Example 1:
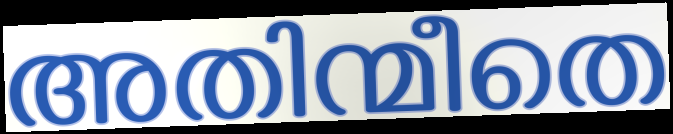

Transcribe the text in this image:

അതിന്മീതെ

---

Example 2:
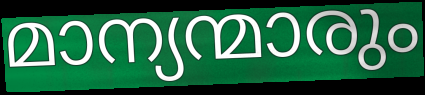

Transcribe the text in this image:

മാന്യന്മാരും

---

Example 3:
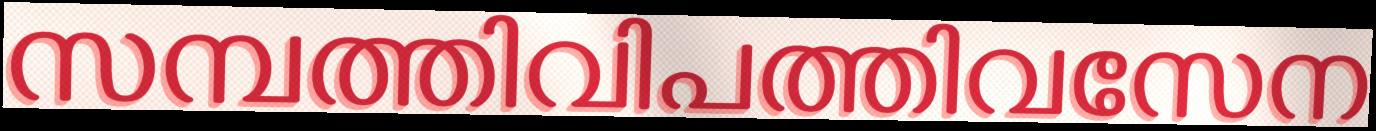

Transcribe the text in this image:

സമ്പത്തിവിപത്തിവസേന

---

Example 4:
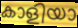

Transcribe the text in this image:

കാളിയാ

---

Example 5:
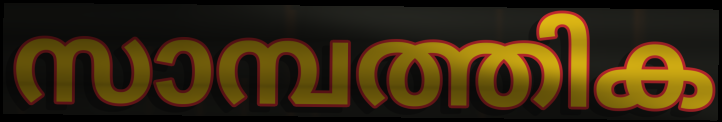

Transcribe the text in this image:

സാമ്പത്തിക